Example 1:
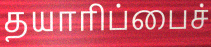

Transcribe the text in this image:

தயாரிப்பைச்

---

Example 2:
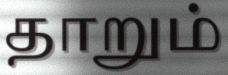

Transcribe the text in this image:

தாறும்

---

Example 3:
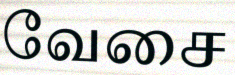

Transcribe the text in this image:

வேசை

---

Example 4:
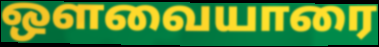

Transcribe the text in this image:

ஔவையாரை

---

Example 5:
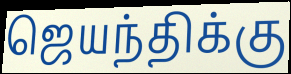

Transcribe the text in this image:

ஜெயந்திக்கு